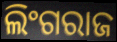
ଲିଂଗରାଜ